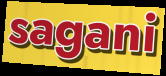
sagani